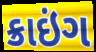
ક્રાઇંગ